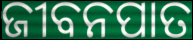
ଜୀବନପାତ